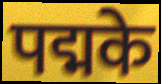
पद्मके